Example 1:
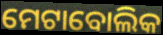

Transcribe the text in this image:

ମେଟାବୋଲିକ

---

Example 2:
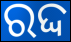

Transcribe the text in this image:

ରଦ୍ଦ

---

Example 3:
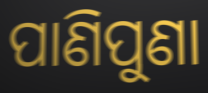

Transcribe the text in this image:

ପାଣିପୁଣା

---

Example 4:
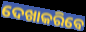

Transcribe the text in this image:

ଦେଖାକରିବେ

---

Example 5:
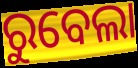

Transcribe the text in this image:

ରୁବେଲା